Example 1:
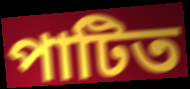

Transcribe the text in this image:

পাটিত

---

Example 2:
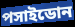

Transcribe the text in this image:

পসাইডোন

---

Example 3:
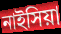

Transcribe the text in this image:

নাইসিয়া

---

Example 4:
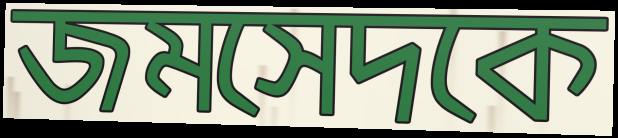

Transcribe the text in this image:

জমসেদকে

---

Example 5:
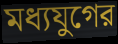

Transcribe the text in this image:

মধ্যযুগের